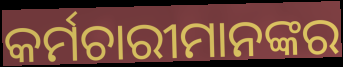
କର୍ମଚାରୀମାନଙ୍କର